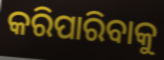
କରିପାରିବାକୁ